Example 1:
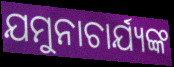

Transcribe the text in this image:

ଯମୁନାଚାର୍ଯ୍ୟଙ୍କ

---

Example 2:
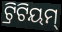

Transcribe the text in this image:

ଟ୍ରିଟିୟମ୍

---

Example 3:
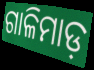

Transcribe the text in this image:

ଗାଳିମାଡ଼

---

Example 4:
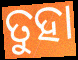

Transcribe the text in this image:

ତୁହା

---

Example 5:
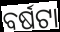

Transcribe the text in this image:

ବର୍ଷଟା